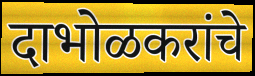
दाभोळकरांचे